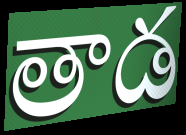
తాడ